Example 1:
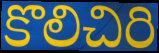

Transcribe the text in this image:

కొలిచిరి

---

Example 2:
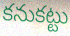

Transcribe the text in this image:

కనుకట్టు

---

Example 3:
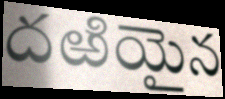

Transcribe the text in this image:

దఱియైన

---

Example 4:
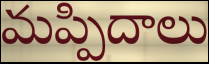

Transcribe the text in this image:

మప్పిదాలు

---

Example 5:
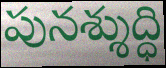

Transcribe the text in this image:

పునశ్శుద్ధి